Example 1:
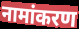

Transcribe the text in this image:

नामांकरण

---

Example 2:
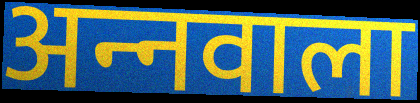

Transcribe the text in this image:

अन्नवाला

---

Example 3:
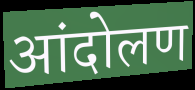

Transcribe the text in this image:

आंदोलण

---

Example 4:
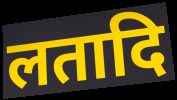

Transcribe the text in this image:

लतादि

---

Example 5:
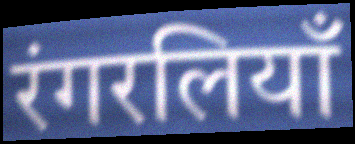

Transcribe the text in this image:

रंगरलियाँ